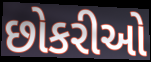
છોકરીઓ